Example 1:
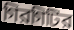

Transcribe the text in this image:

গিরগিটির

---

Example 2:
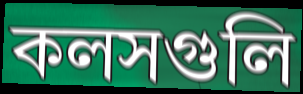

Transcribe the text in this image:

কলসগুলি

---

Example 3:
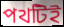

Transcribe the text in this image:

পথটিই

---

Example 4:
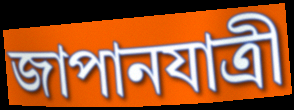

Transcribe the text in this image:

জাপানযাত্রী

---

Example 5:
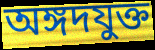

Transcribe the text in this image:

অঙ্গদযুক্ত